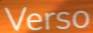
Verso